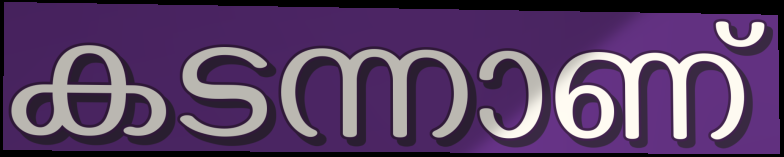
കടന്നാണ്